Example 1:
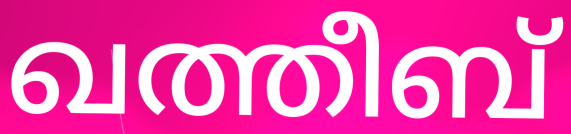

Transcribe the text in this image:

ഖത്തീബ്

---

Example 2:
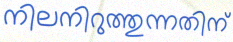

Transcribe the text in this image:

നിലനിറുത്തുന്നതിന്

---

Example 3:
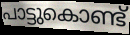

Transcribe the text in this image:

പാട്ടുകൊണ്ട്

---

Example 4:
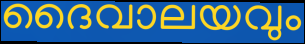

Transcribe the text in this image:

ദൈവാലയവും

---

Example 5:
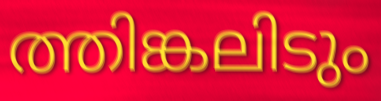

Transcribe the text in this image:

ത്തിങ്കലിടും